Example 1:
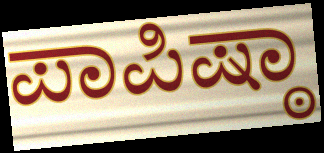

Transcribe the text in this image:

ಪಾಪಿಷ್ಠಾ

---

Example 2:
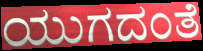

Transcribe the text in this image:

ಯುಗದಂತೆ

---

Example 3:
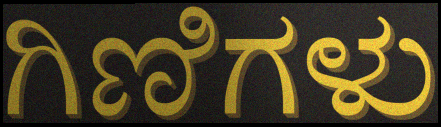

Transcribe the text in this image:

ಗಿಣಿಗಳು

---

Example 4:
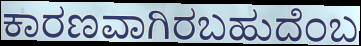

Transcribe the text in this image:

ಕಾರಣವಾಗಿರಬಹುದೆಂಬ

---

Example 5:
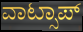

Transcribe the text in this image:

ವಾಟ್ಸಾಪ್